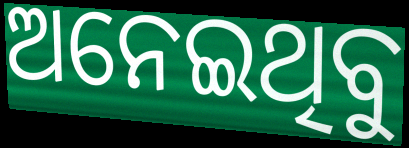
ଅନେଇଥିବୁ